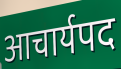
आचार्यपद